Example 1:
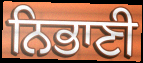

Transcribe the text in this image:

ਨਿਭਾਣੀ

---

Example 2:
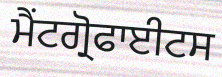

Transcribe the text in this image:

ਮੈਂਟਗ੍ਰੋਫਾਈਟਸ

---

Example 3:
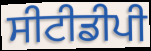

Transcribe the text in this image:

ਸੀਟੀਡੀਪੀ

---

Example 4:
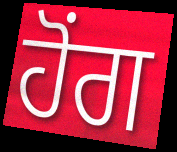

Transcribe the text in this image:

ਹੋੰਗ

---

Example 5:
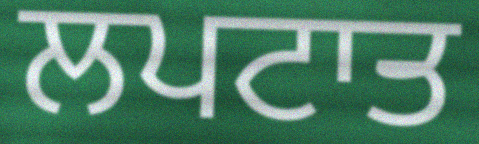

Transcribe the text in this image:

ਲਪਟਾਤ